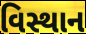
વિસ્થાન